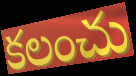
కలంచు